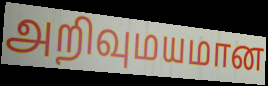
அறிவுமயமான